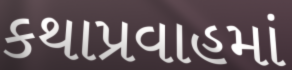
કથાપ્રવાહમાં